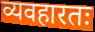
व्यवहारतः